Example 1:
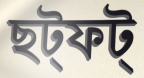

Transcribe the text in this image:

ছট্ফট্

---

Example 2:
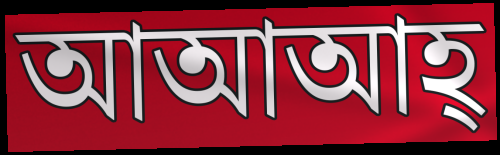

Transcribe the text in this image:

আআআহ্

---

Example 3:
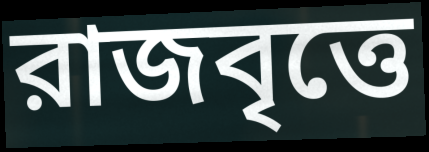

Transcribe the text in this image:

রাজবৃত্তে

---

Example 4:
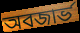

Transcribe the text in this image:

অবজার্ভ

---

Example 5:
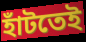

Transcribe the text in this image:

হাঁটতেই